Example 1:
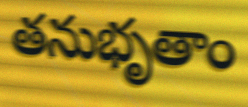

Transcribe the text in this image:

తనుభృతాం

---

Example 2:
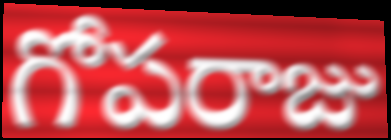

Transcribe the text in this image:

గోపరాజు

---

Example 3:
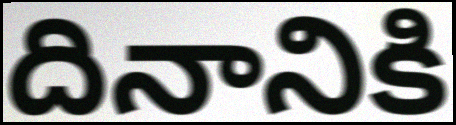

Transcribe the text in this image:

దినానికి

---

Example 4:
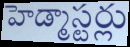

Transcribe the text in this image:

హెడ్మాస్టర్లు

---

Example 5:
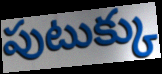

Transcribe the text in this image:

పుటుక్కు